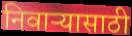
निवाऱ्यासाठी